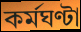
কৰ্মঘণ্টা